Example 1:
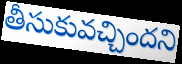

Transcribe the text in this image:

తీసుకువచ్చిందని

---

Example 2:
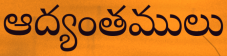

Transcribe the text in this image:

ఆద్యంతములు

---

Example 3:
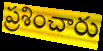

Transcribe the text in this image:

ప్రశించారు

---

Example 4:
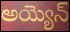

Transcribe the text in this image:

అయ్యెన్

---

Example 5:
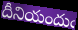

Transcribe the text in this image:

దీనియందుఁ